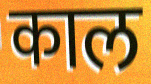
काल